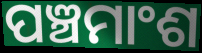
ପଞ୍ଚମାଂଶ